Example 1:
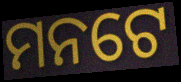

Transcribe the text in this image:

ମନଟେ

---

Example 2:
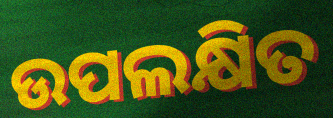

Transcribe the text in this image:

ଉପଲକ୍ଷିତ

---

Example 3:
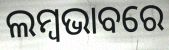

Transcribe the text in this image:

ଲମ୍ବଭାବରେ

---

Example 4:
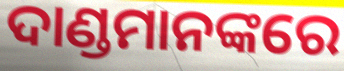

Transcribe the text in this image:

ଦାଣ୍ଡମାନଙ୍କରେ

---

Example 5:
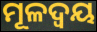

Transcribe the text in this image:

ମୂଳଦ୍ୱୟ